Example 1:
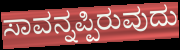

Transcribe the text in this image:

ಸಾವನ್ನಪ್ಪಿರುವುದು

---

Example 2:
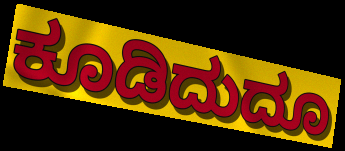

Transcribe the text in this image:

ಕೂಡಿದುದೂ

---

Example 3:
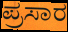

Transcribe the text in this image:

ಪ್ರಸಾರ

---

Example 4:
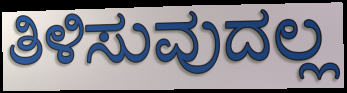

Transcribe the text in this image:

ತಿಳಿಸುವುದಲ್ಲ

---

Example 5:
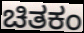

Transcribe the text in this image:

ಚಿತಕಂ